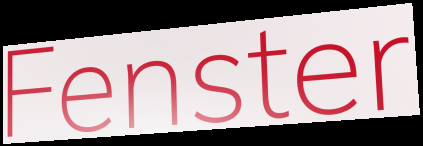
Fenster